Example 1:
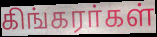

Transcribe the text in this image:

கிங்கரர்கள்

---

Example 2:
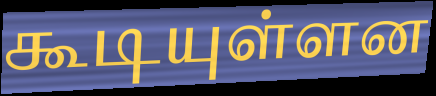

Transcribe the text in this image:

கூடியுள்ளன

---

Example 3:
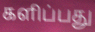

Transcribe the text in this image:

களிப்பது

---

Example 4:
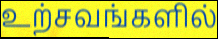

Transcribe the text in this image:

உற்சவங்களில்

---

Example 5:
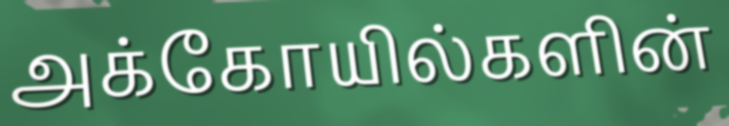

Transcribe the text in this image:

அக்கோயில்களின்